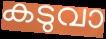
കടുവാ